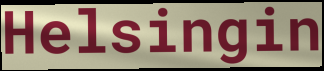
Helsingin